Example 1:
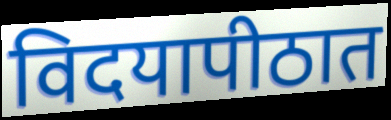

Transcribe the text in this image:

विदयापीठात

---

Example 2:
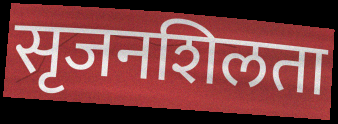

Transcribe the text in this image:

सृजनशिलता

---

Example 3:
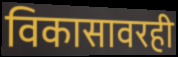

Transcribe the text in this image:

विकासावरही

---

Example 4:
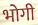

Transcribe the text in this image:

भोगी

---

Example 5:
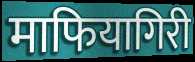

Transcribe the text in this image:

माफियागिरी